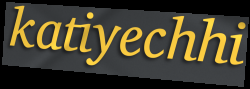
katiyechhi